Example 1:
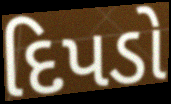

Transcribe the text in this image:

દિપડો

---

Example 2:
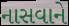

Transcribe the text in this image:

નાસવાને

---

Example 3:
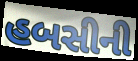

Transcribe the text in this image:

હબસીની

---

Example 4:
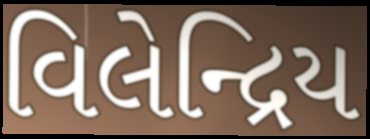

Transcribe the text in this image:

વિલેન્દ્રિય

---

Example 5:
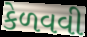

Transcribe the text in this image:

કેળવવી